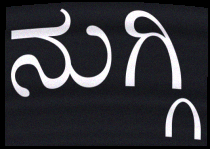
ನುಗ್ಗಿ